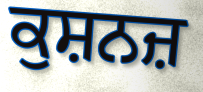
ਕੁਸ਼ਨਜ਼